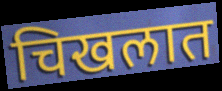
चिखलात